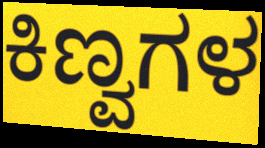
ಕಿಣ್ವಗಳ